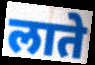
लाते